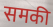
समकी